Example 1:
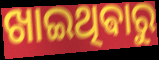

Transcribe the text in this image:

ଖାଇଥିଵାରୁ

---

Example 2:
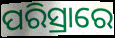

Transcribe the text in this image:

ପରିସ୍ରାରେ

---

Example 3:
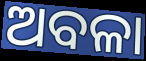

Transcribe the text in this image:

ଅବଳା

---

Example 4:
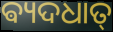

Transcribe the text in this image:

ଵ୍ୟଦଧାତ୍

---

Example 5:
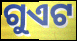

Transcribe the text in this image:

ଗୁଏଟ